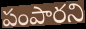
పంపారని